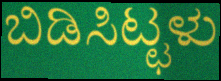
ಬಿಡಿಸಿಟ್ಟಳು